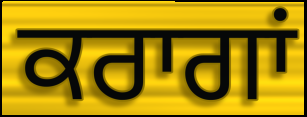
ਕਰਾਗਾਂ